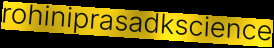
rohiniprasadkscience